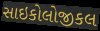
સાઇકોલોજીકલ